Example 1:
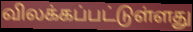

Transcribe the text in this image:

விலக்கப்பட்டுள்ளது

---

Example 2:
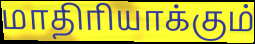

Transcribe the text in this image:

மாதிரியாக்கும்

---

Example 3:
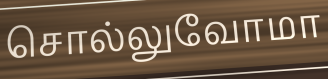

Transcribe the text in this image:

சொல்லுவோமா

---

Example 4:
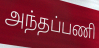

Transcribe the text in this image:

அந்தப்பணி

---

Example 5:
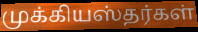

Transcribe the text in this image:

முக்கியஸ்தர்கள்